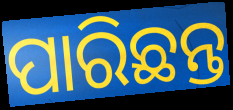
ପାରିଛନ୍ତ